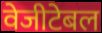
वेजीटेबल